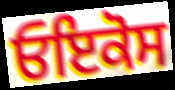
ਓਇਕੋਸ